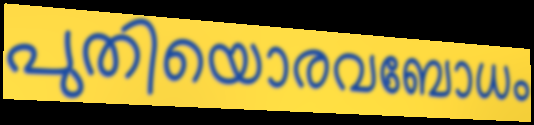
പുതിയൊരവബോധം